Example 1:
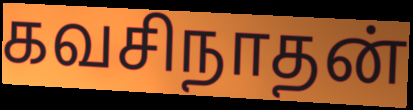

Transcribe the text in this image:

கவசிநாதன்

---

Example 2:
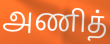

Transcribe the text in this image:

அணித்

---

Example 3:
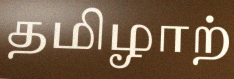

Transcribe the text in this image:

தமிழாற்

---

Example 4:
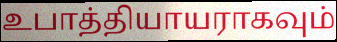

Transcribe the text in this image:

உபாத்தியாயராகவும்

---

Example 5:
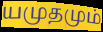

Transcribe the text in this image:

யமுதமும்